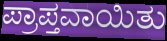
ಪ್ರಾಪ್ತವಾಯಿತು